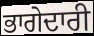
ਭਾਗੇਦਾਰੀ